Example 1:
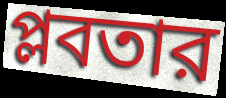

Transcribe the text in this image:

প্লবতার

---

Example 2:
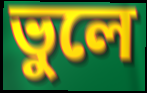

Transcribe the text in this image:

ভুলে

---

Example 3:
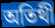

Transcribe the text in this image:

অতিথী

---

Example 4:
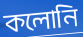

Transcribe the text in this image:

কলোনি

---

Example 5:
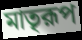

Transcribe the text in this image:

মাতৃরূপ